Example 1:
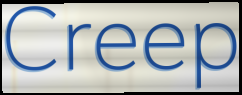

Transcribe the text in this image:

Creep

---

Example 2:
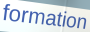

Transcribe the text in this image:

formation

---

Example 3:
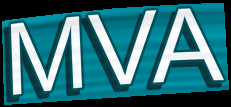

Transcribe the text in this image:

MVA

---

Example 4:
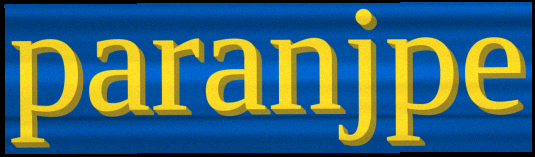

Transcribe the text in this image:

paranjpe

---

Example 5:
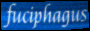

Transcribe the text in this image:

fuciphagus